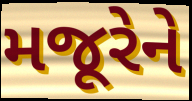
મજૂરેને